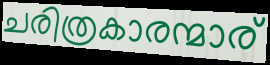
ചരിത്രകാരന്മാര്